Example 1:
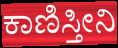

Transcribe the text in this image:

ಕಾಣಿಸ್ತೀನಿ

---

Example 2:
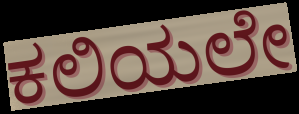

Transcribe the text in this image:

ಕಲಿಯಲೇ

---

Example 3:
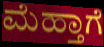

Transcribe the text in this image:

ಮೆಹ್ತಾಗೆ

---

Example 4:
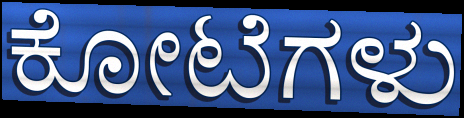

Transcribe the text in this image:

ಕೋಟೆಗಳು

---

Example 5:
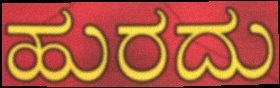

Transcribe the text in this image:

ಹುರದು